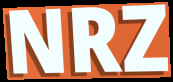
NRZ